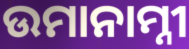
ଉମାନାମ୍ନୀ